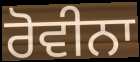
ਰੋਵੀਨਾ